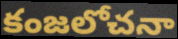
కంజలోచనా